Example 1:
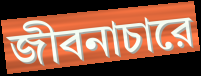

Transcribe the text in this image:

জীবনাচারে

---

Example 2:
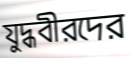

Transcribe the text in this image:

যুদ্ধবীরদের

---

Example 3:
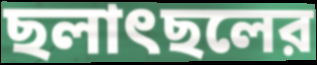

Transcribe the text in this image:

ছলাৎছলের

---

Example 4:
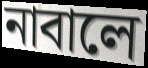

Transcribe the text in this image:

নাবালে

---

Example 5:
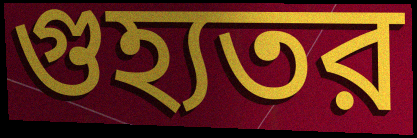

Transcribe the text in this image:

গুহ্যতর